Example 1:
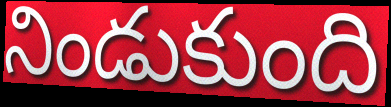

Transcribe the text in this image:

నిండుకుంది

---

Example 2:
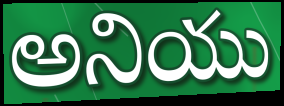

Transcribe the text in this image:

అనియు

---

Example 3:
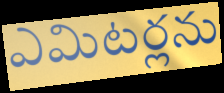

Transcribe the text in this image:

ఎమిటర్లను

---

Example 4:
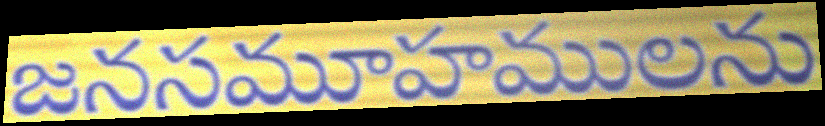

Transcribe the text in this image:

జనసమూహములను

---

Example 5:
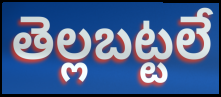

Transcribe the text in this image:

తెల్లబట్టలే